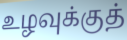
உழவுக்குத்